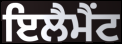
ਇਲੈਮੈਂਟ